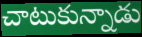
చాటుకున్నాడు